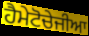
ਹੈਮੇਟੋਚੇਜੀਆ